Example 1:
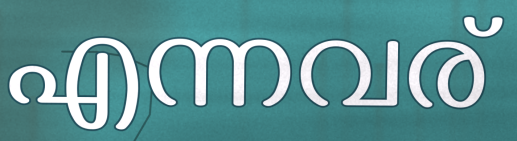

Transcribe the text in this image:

എന്നവര്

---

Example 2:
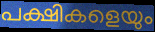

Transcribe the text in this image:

പക്ഷികളെയും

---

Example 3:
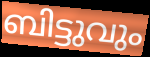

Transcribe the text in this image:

ബിട്ടുവും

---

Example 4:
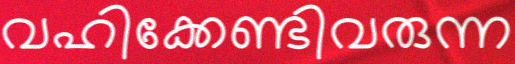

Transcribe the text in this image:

വഹിക്കേണ്ടിവരുന്ന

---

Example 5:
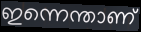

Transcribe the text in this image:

ഇന്നെന്താണ്